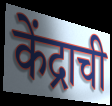
केंद्राची